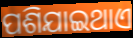
ପଶିଯାଇଥାଏ